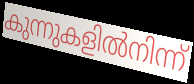
കുന്നുകളിൽനിന്ന്